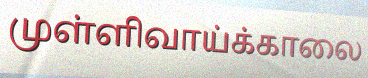
முள்ளிவாய்க்காலை